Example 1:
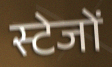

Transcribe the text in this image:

स्टेजों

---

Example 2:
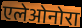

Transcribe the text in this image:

एलेओनोरा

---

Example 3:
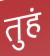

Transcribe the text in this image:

तुहं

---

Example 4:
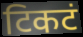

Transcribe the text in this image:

टिकटं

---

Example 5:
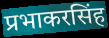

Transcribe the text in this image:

प्रभाकरसिंह